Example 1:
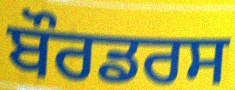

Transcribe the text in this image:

ਬੌਰਡਰਸ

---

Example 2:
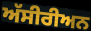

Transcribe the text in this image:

ਅੱਸੀਰੀਅਨ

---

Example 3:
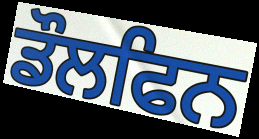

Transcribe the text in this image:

ਡੌਲਫਿਨ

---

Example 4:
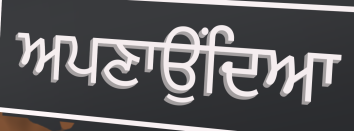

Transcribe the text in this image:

ਅਪਣਾਉਂਦਿਆ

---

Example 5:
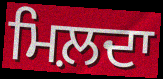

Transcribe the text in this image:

ਮਿਲ਼ਦਾ